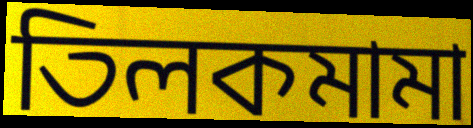
তিলকমামা